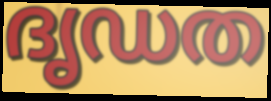
ദൃഡത